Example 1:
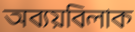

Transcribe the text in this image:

অব্যয়বিলাক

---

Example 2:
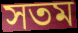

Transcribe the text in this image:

সতম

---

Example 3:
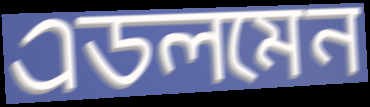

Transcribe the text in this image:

এডলমেন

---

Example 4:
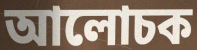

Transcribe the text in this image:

আলোচক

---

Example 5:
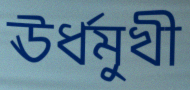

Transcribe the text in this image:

ঊৰ্ধমুখী